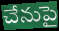
చేనుపై